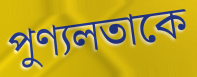
পুণ্যলতাকে